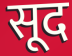
सूद